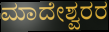
ಮಾದೇಶ್ವರರ